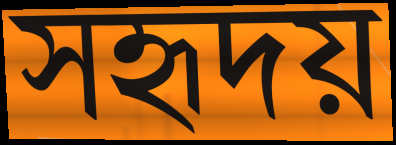
সহৃদয়